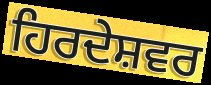
ਹਿਰਦੇਸ਼ਵਰ